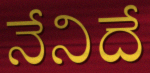
నేనిదే